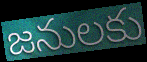
జనులకు